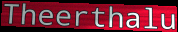
Theerthalu